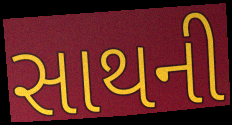
સાથની